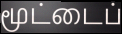
மூட்டைப்